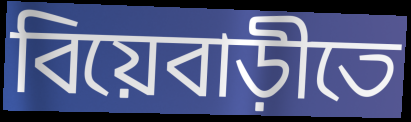
বিয়েবাড়ীতে